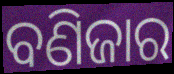
ବଣିଜାର